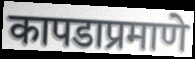
कापडाप्रमाणे